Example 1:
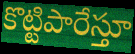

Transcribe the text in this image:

కొట్టిపారేస్తూ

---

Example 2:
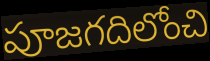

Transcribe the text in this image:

పూజగదిలోంచి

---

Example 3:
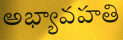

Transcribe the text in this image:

అభ్యావహతి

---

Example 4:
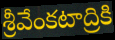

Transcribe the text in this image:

శ్రీవేంకటాద్రికి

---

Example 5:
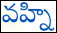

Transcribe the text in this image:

వహ్ని